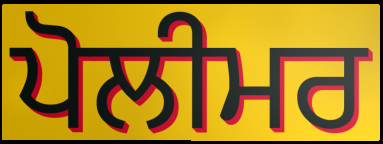
ਪੋਲੀਮਰ